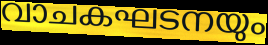
വാചകഘടനയും